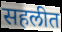
सहलीत